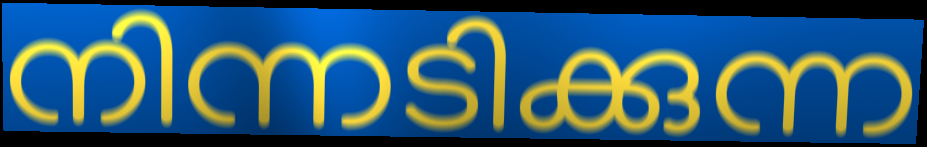
നിന്നടിക്കുന്ന